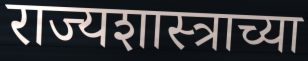
राज्यशास्त्राच्या